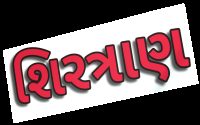
શિરત્રાણ